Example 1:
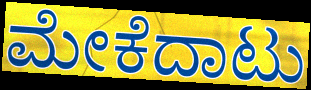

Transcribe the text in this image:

ಮೇಕೆದಾಟು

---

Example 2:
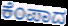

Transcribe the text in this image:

ಕೆಂಪಾದ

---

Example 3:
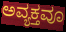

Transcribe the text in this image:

ಅವ್ಯಕ್ತವೂ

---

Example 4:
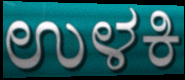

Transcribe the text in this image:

ಉಳಕಿ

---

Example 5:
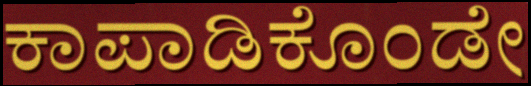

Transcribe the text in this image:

ಕಾಪಾಡಿಕೊಂಡೇ